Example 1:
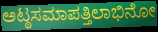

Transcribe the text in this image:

ಅಟ್ಠಸಮಾಪತ್ತಿಲಾಭಿನೋ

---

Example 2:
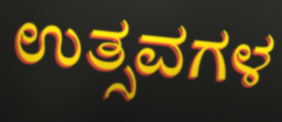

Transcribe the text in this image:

ಉತ್ಸವಗಳ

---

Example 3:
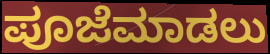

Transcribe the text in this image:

ಪೂಜೆಮಾಡಲು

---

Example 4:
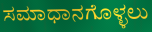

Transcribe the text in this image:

ಸಮಾಧಾನಗೊಳ್ಳಲು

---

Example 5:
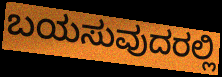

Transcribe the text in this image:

ಬಯಸುವುದರಲ್ಲಿ